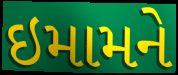
ઇમામને